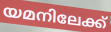
യമനിലേക്ക്